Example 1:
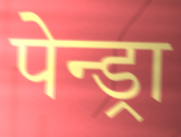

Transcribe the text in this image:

पेन्ड्रा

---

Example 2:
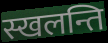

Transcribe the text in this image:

स्खलन्ति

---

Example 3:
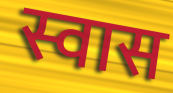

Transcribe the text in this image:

स्वास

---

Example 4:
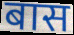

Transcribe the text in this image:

बास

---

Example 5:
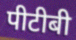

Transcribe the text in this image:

पीटीबी